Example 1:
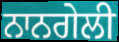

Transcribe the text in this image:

ਨਾਨਗੇਲੀ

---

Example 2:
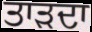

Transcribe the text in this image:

ਤਾੜਦਾ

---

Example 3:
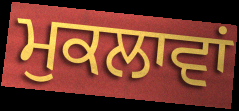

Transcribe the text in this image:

ਮੁਕਲਾਵਾਂ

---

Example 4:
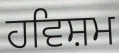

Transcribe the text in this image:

ਹਵਿਸ਼ਮ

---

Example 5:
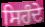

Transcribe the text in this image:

ਸਿਹੰਦੇ